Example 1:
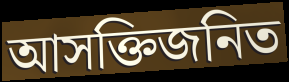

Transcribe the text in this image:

আসক্তিজনিত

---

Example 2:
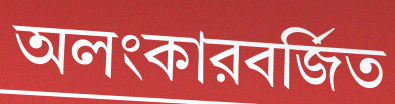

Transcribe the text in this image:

অলংকারবর্জিত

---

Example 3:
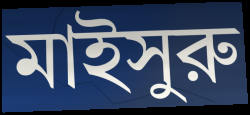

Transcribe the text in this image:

মাইসুরু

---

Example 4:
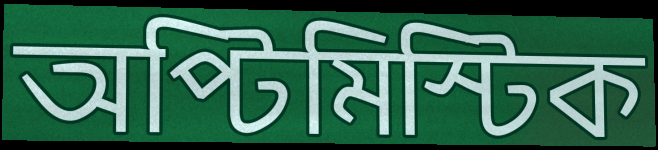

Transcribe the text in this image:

অপ্টিমিস্টিক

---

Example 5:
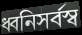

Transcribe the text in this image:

ধ্বনিসর্বস্ব